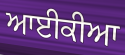
ਆਈਕੀਆ